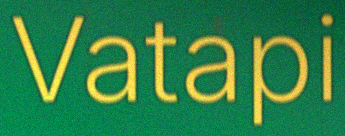
Vatapi